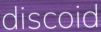
discoid